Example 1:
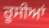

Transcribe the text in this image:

ਰੂਸੀਆਂ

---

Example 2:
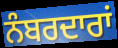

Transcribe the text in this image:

ਨੰਬਰਦਾਰਾਂ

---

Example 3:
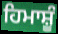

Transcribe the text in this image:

ਹਿਮਾਸ਼ੂੰ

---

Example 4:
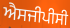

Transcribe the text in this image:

ਐਸਜੀਪੀਸੀ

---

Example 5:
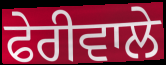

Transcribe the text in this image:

ਫੇਰੀਵਾਲੇ